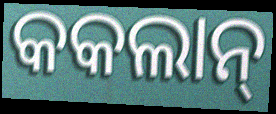
କକଲାନ୍